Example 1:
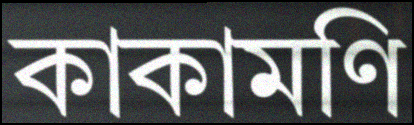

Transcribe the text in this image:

কাকামণি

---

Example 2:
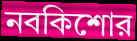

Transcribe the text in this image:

নবকিশোর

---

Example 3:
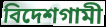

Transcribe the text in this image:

বিদেশগামী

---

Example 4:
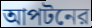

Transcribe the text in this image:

আপটনের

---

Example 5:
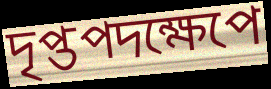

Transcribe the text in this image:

দৃপ্তপদক্ষেপে